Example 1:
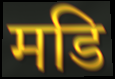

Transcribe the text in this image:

मडि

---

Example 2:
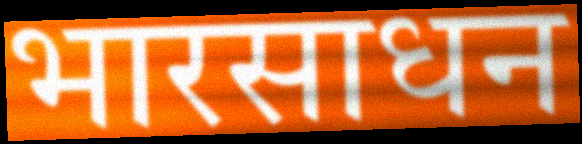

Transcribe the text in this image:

भारसाधन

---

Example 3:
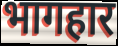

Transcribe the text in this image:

भागहार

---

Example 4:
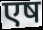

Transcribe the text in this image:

एष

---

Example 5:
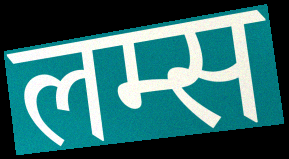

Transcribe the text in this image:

लम्स